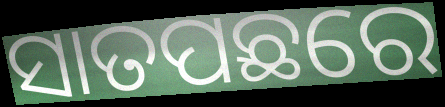
ସାତପଛରେ